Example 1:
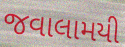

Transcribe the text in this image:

જવાલામયી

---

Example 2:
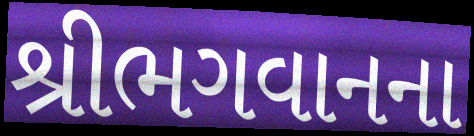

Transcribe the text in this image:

શ્રીભગવાનના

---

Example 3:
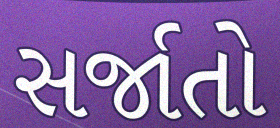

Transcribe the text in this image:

સર્જાતો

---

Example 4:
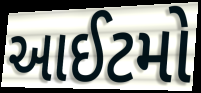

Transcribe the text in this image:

આઈટમો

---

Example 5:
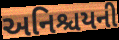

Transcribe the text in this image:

અનિશ્ચયની